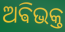
ଅଵିଭକ୍ତ